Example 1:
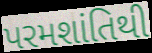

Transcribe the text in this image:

પરમશાંતિથી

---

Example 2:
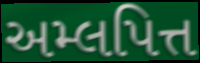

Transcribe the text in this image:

અમ્લપિત્ત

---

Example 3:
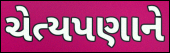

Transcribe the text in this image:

ચેત્યપણાને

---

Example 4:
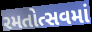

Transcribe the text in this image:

રમતોત્સવમાં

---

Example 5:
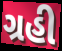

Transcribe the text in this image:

ગ્રહી